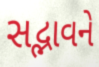
સદ્ભાવને